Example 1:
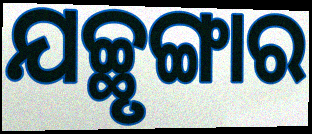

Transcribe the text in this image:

ଯଚ୍ଛୃଙ୍ଗାର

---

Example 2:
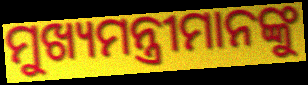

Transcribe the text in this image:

ମୁଖ୍ୟମନ୍ତ୍ରୀମାନଙ୍କୁ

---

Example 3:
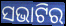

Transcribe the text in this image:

ସଭାଟିର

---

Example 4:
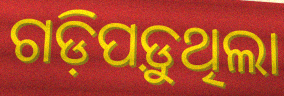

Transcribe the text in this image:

ଗଡ଼ିପଡ଼ୁଥିଲା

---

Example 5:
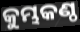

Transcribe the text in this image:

କୁମ୍ଭକଣ୍ଠ